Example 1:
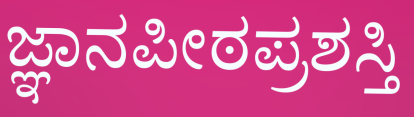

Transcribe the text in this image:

ಜ್ಞಾನಪೀಠಪ್ರಶಸ್ತಿ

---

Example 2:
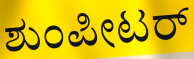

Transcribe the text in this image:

ಶುಂಪೀಟರ್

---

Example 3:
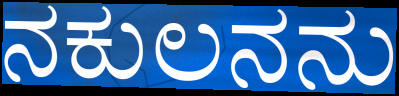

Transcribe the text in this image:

ನಕುಲನನು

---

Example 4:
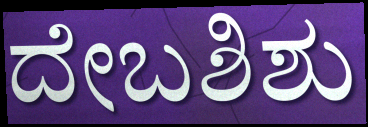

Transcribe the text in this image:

ದೇಬಶಿಶು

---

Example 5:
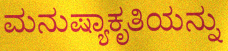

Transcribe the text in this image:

ಮನುಷ್ಯಾಕೃತಿಯನ್ನು